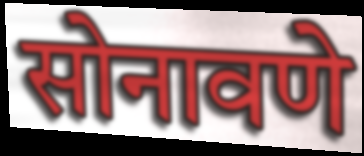
सोनावणे